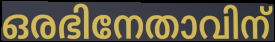
ഒരഭിനേതാവിന്